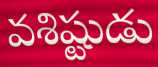
వశిష్టుడు